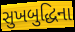
સુખબુદ્ધિના